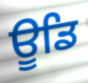
ਊਡਿ